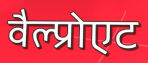
वैल्प्रोएट